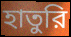
হাতুরি